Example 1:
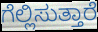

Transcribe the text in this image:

ಗೆಲ್ಲಿಸುತ್ತಾರೆ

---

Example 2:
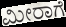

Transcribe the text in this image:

ಮೀರಾಗೆ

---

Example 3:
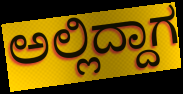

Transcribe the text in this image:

ಅಲ್ಲಿದ್ದಾಗ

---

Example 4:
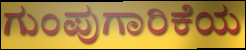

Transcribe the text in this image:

ಗುಂಪುಗಾರಿಕೆಯ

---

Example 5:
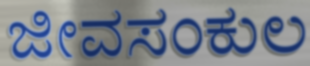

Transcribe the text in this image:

ಜೀವಸಂಕುಲ